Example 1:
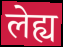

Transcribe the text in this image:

लेह्य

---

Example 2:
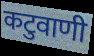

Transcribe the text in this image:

कटुवाणी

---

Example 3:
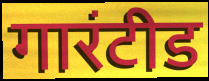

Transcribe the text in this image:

गारंटीड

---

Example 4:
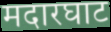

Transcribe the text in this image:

मदारघाट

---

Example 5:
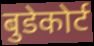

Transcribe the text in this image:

बुडेकोर्ट